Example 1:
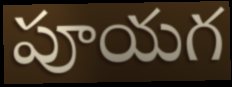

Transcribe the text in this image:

పూయగ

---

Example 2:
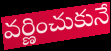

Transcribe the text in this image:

వర్ణించుకునే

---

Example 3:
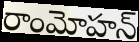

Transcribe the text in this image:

రాంమోహన్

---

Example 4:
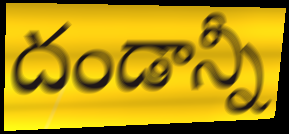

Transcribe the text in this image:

దండాన్నీ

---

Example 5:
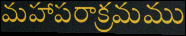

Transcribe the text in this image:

మహాపరాక్రమము